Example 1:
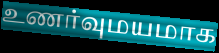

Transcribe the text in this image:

உணர்வுமயமாக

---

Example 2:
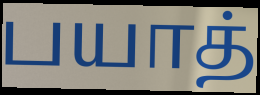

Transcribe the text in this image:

பயாத்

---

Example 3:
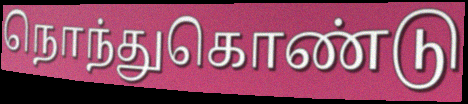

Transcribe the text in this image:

நொந்துகொண்டு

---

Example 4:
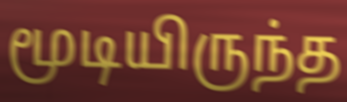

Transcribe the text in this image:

மூடியிருந்த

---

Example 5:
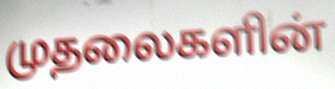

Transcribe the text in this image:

முதலைகளின்